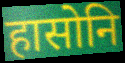
हासोनि